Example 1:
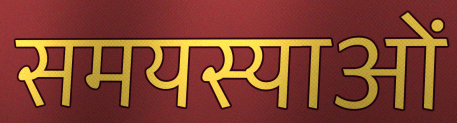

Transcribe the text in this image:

समयस्याओं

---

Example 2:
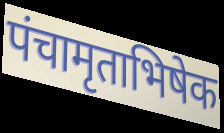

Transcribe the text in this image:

पंचामृताभिषेक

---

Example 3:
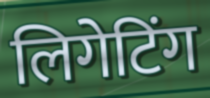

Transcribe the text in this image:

लिगेटिंग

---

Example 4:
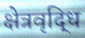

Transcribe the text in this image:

क्षेत्रवृद्धि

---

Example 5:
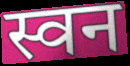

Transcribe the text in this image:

स्वन